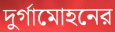
দুর্গামোহনের